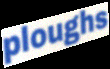
ploughs